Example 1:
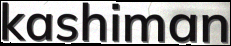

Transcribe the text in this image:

kashiman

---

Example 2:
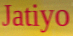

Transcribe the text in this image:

Jatiyo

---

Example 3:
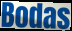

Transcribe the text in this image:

Bodas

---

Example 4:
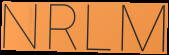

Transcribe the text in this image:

NRLM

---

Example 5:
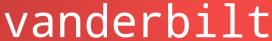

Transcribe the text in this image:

vanderbilt